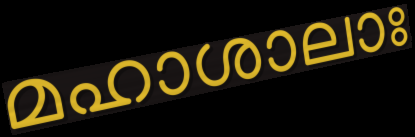
മഹാശാലാഃ